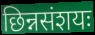
छिन्नसंशयः